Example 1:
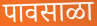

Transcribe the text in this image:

पावसाळा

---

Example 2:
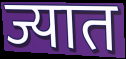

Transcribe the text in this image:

ज्यात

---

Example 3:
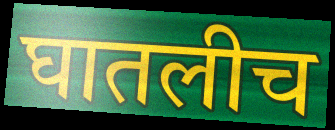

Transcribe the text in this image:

घातलीच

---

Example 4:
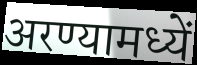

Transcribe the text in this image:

अरण्यामध्यें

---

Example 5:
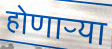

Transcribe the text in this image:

होणाऱ्या